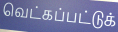
வெட்கப்பட்டுக்